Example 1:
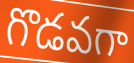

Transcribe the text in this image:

గొడవగా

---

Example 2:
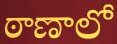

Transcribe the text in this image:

ఠాణాలో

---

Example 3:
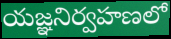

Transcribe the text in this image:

యజ్ఞనిర్వహణలో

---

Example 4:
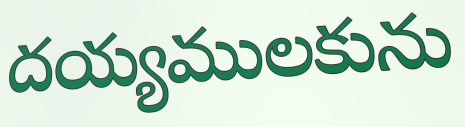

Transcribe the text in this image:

దయ్యములకును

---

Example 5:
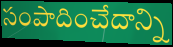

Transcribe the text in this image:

సంపాదించేదాన్ని